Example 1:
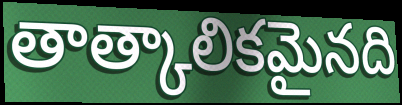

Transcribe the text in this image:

తాత్కాలికమైనది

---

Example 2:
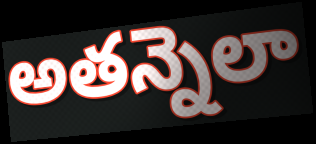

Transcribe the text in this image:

అతన్నెలా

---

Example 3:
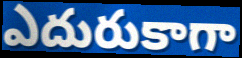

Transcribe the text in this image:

ఎదురుకాగా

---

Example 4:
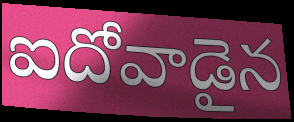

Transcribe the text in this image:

ఐదోవాడైన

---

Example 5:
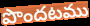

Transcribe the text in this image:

పొందటము